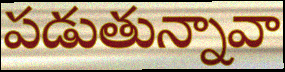
పడుతున్నావా